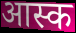
आस्क